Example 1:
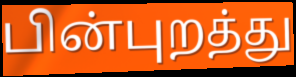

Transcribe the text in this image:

பின்புறத்து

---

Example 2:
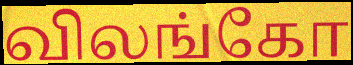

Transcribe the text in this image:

விலங்கோ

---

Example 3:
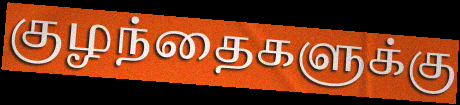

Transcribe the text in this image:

குழந்தைகளுக்கு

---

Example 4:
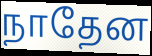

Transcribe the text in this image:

நாதேன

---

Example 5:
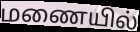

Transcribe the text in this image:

மணையில்